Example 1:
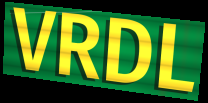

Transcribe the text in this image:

VRDL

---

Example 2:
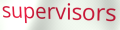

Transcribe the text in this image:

supervisors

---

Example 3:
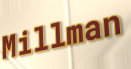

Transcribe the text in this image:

Millman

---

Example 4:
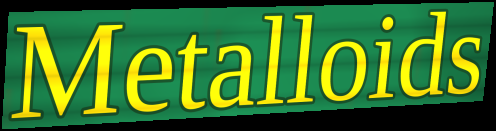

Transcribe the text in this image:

Metalloids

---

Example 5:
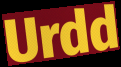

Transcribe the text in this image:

Urdd